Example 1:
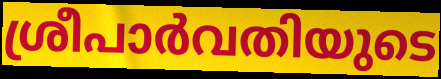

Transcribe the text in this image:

ശ്രീപാർവതിയുടെ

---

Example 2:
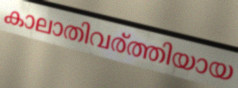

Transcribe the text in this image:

കാലാതിവര്ത്തിയായ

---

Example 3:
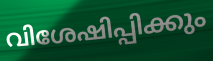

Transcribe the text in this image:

വിശേഷിപ്പിക്കും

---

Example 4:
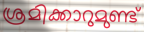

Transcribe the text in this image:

ശ്രമിക്കാറുമുണ്ട്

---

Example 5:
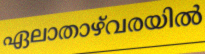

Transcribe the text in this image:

ഏലാതാഴ്‌വരയിൽ